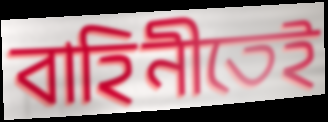
বাহিনীতেই